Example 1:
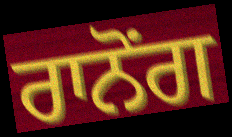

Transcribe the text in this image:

ਰਾਨੋਂਗ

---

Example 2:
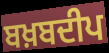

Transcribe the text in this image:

ਬਖ਼ਬਦੀਪ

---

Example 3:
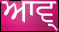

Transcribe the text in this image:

ਆਵ੍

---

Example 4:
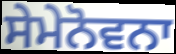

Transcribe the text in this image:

ਸੇਮੇਨੋਵਨਾ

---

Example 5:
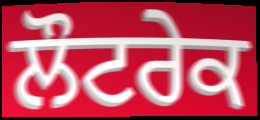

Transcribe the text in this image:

ਲੌਟਰੇਕ